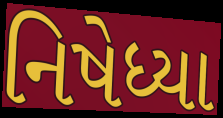
નિષેધ્યા